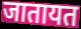
जातायत